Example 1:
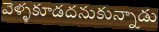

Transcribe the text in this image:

వెళ్ళకూడదనుకున్నాడు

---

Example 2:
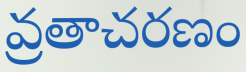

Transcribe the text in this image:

వ్రతాచరణం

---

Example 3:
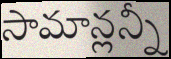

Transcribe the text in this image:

సామాన్లన్నీ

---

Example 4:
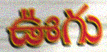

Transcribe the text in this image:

ఊగు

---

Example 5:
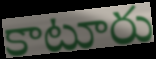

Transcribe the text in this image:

కాటూరు